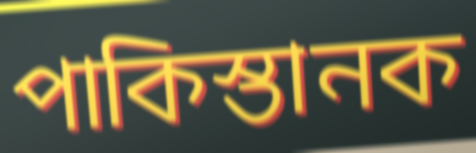
পাকিস্তানক